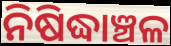
ନିଷିଦ୍ଧାଞ୍ଚଳ